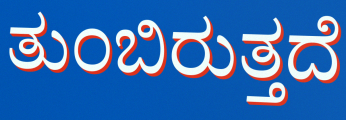
ತುಂಬಿರುತ್ತದೆ